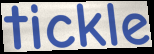
tickle